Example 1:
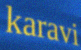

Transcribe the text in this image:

karavi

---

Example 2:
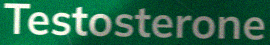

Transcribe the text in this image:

Testosterone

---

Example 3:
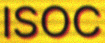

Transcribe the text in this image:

ISOC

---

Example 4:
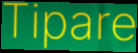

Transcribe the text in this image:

Tipare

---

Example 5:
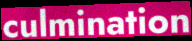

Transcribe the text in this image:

culmination